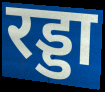
रड्डा